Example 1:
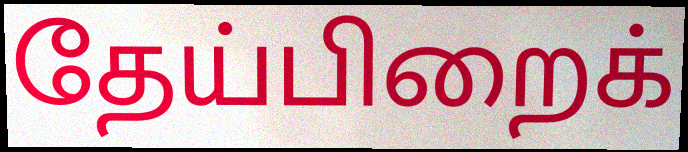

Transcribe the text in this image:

தேய்பிறைக்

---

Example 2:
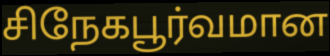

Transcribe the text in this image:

சிநேகபூர்வமான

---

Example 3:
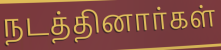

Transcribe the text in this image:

நடத்தினார்கள்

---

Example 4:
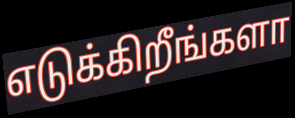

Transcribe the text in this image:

எடுக்கிறீங்களா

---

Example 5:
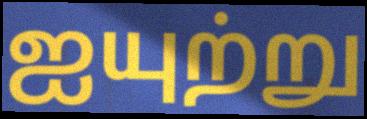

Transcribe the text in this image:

ஐயுற்று